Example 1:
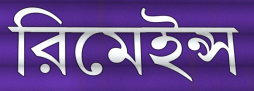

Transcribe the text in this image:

রিমেইন্স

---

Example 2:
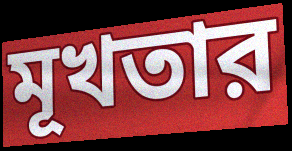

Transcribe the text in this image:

মূখতার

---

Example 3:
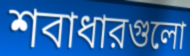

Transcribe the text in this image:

শবাধারগুলো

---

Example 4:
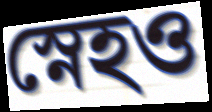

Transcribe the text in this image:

স্নেহও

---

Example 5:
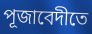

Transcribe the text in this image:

পূজাবেদীতে